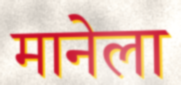
मानेला